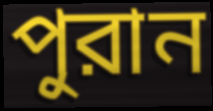
পুরান